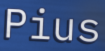
Pius